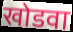
खोडवा